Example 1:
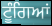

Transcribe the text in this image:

ਟੂੰਗਿਆਂ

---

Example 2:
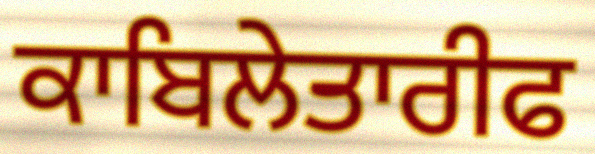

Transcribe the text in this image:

ਕਾਬਿਲੇਤਾਰੀਫ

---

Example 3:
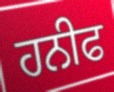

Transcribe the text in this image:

ਹਨੀਫ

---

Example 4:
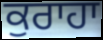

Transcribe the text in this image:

ਕੁਰਾਹਾ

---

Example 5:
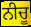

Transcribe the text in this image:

ਨੀਚੂ